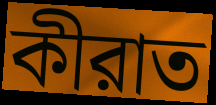
কীরাত